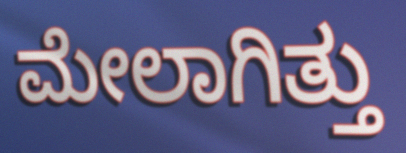
ಮೇಲಾಗಿತ್ತು